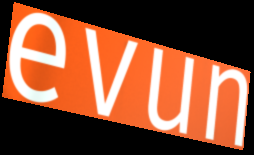
evun